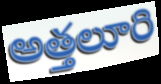
అత్తలూరి